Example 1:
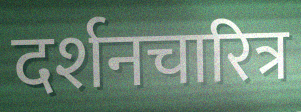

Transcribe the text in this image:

दर्शनचारित्र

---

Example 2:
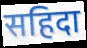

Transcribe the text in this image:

सहिदा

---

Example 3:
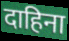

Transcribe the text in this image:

दाहिना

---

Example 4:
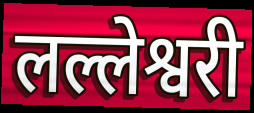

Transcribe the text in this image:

लल्लेश्वरी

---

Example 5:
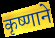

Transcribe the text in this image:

कृष्णाने